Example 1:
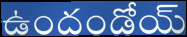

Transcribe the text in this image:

ఉందండోయ్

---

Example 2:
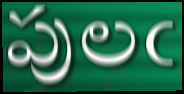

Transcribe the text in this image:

పులఁ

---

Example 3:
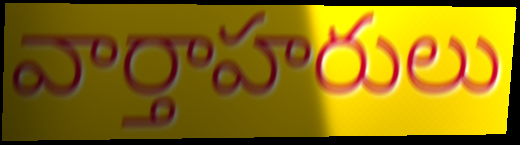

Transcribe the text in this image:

వార్తాహరులు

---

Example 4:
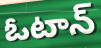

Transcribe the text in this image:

ఓటాన్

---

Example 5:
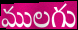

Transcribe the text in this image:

ములగు